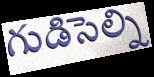
గుడిసెల్ని